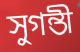
সুগন্তী